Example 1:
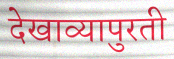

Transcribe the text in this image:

देखाव्यापुरती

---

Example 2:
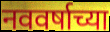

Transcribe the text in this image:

नववर्षाच्या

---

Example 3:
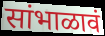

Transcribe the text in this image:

सांभाळावं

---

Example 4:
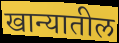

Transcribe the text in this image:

खान्यातील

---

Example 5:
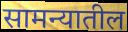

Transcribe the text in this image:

सामन्यातील